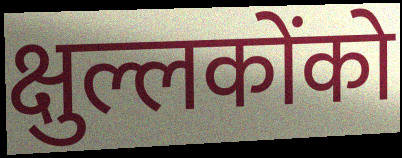
क्षुल्लकोंको